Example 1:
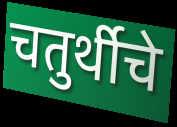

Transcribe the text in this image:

चतुर्थीचे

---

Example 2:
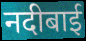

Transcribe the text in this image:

नदीबाई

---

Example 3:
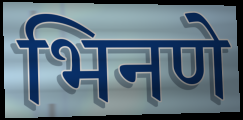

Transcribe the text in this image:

भिनणे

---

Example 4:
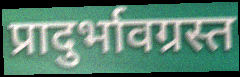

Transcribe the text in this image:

प्रादुर्भावग्रस्त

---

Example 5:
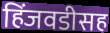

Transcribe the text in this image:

हिंजवडीसह